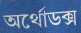
অর্থোডক্স